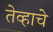
तेव्हाचे